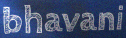
bhavani